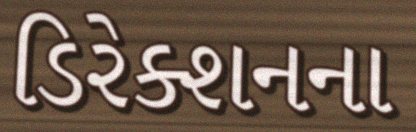
ડિરેક્શનના